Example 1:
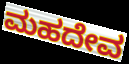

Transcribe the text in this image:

ಮಹದೇವ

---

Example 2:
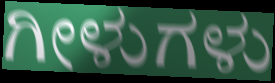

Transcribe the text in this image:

ಗೀಳುಗಳು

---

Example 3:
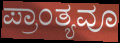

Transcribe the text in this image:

ಪ್ರಾಂತ್ಯವೂ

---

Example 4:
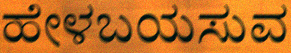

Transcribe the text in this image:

ಹೇಳಬಯಸುವ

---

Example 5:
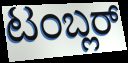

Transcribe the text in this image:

ಟಂಬ್ಲರ್